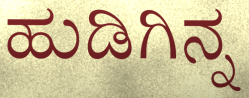
ಹುಡಿಗಿನ್ನ